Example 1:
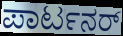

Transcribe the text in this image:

ಪಾರ್ಟನರ್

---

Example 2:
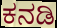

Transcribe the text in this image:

ಕನಡಿ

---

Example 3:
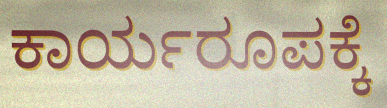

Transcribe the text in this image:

ಕಾರ್ಯರೂಪಕ್ಕೆ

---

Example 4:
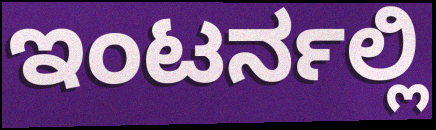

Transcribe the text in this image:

ಇಂಟರ್ನಲ್ಲಿ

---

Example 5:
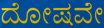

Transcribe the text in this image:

ದೋಷವೇ